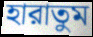
হারাতুম